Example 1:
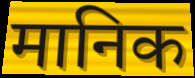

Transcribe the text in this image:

मानिक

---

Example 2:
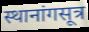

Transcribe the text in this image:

स्थानांगसूत्र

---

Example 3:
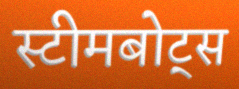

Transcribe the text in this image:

स्टीमबोट्स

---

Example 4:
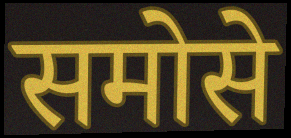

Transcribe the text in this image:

समोसे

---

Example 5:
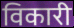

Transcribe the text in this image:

विकारी